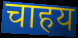
चाहय